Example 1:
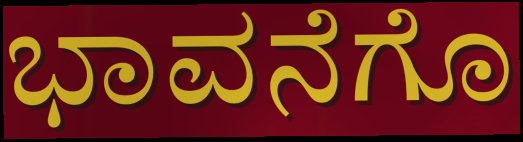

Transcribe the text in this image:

ಭಾವನೆಗೊ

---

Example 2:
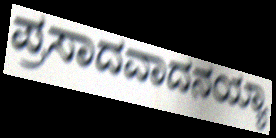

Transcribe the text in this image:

ಪ್ರಸಾದವಾದನಯ್ಯಾ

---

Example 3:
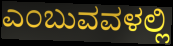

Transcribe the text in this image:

ಎಂಬುವವಳಲ್ಲಿ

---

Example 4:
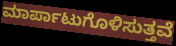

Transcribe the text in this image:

ಮಾರ್ಪಾಟುಗೊಳಿಸುತ್ತವೆ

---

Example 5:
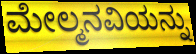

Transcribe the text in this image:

ಮೇಲ್ಮನವಿಯನ್ನು